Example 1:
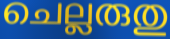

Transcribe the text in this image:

ചെല്ലരുതു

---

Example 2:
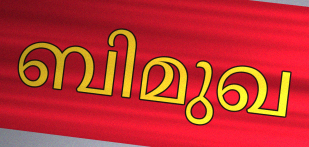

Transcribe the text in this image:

ബിമുഖ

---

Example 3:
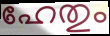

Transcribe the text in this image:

ഹേതും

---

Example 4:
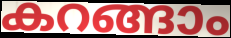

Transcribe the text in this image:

കറങ്ങാം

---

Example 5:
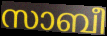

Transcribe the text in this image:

സാബീ